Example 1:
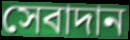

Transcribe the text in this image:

সেবাদান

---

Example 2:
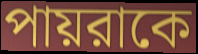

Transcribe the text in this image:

পায়রাকে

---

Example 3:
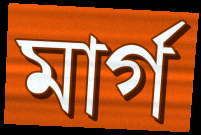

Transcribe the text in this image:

মার্গ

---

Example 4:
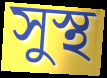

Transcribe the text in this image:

সুস্থ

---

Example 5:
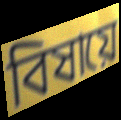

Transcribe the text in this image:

বিষায়ে